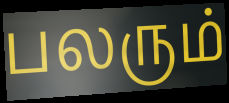
பலரும்